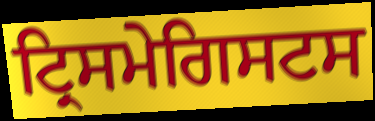
ਟ੍ਰਿਸਮੇਗਿਸਟਸ